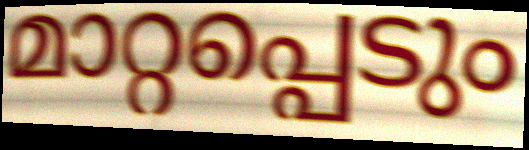
മാറ്റപ്പെടും